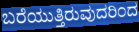
ಬರೆಯುತ್ತಿರುವುದರಿಂದ